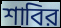
শাবির